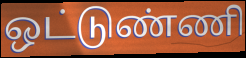
ஒட்டுண்ணி